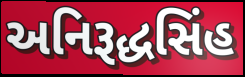
અનિરૂદ્ધસિંહ